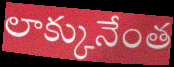
లాక్కునేంత